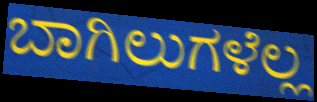
ಬಾಗಿಲುಗಳೆಲ್ಲ